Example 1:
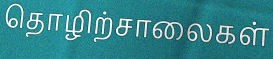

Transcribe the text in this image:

தொழிற்சாலைகள்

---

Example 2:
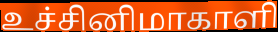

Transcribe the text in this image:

உச்சினிமாகாளி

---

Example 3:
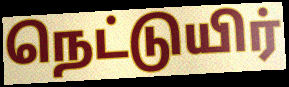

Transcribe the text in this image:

நெட்டுயிர்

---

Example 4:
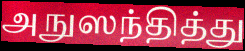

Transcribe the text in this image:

அநுஸந்தித்து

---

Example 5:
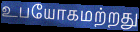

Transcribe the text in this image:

உபயோகமற்றது